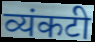
व्यंकटी